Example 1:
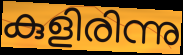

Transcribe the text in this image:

കുളിരിന്നു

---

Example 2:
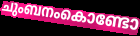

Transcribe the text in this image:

ചുംബനംകൊണ്ടോ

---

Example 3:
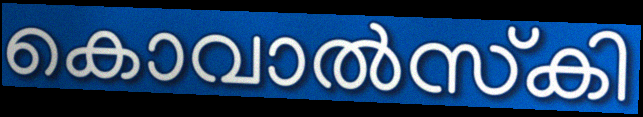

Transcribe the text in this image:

കൊവാൽസ്‌കി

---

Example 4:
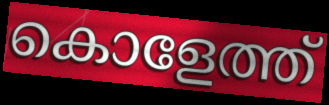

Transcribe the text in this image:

കൊളേത്ത്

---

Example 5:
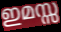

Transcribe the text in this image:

ഇമസ്സ